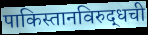
पाकिस्तानविरुद्धची